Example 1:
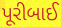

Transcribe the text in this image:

પૂરીબાઈ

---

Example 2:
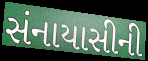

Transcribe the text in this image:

સંનાયાસીની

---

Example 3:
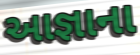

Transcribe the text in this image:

આજ્ઞાના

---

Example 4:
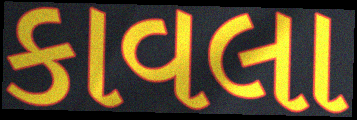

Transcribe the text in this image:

કાવલા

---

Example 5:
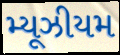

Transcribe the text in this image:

મ્યૂઝીયમ